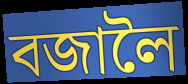
বজালৈ